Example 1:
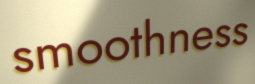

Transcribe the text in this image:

smoothness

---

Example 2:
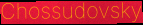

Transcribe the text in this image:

Chossudovsky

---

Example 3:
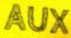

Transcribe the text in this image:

AUX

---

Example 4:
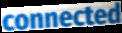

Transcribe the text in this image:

connected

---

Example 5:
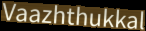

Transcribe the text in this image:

Vaazhthukkal